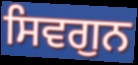
ਸਿਵਗੁਨ